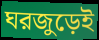
ঘরজুড়েই